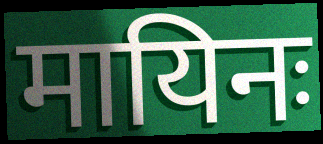
मायिनः